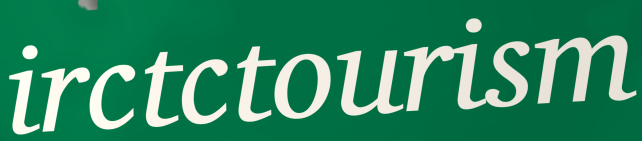
irctctourism